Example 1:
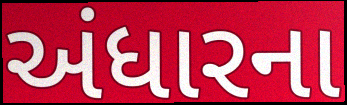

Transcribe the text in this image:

અંધારના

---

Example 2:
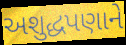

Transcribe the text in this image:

અશુદ્ધપણાને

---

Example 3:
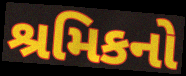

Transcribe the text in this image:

શ્રમિકનો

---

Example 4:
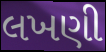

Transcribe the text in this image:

લખણી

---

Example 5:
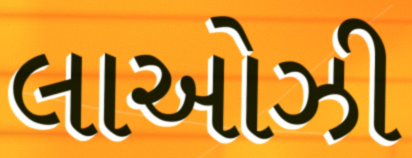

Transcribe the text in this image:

લાઓઝી